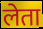
लेता